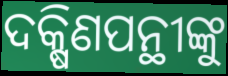
ଦକ୍ଷିଣପନ୍ଥୀଙ୍କୁ